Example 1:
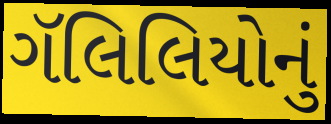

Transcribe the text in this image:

ગૅલિલિયોનું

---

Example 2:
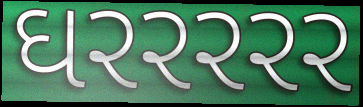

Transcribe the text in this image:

ઘરરરરર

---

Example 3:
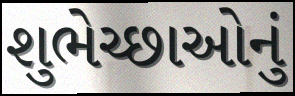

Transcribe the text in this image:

શુભેચ્છાઓનું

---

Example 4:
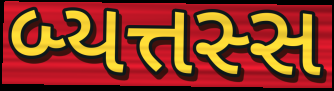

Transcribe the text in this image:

બ્યત્તસ્સ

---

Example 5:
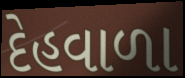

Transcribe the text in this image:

દેહવાળા